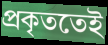
প্ৰকৃততেই